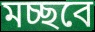
মচ্ছবে